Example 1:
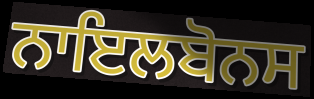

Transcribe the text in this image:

ਨਾਇਲਬੋਨਸ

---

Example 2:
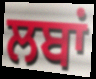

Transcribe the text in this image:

ਲਬਾਂ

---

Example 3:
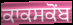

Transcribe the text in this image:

ਕਾਕਸਕੋਂਬ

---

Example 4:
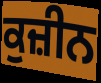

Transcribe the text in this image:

ਕੁਜ਼ੀਨ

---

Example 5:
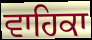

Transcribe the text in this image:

ਵਾਹਿਕਾ